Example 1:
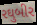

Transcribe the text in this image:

રઘુબીર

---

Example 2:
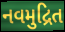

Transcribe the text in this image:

નવમુદ્રિત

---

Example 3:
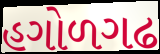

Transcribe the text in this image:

હગોળગઢ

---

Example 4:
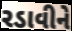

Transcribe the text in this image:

રડાવીને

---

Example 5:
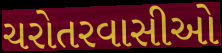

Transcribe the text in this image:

ચરોતરવાસીઓ